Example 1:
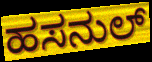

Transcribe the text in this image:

ಹಸನುಲ್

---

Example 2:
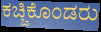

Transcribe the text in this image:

ಕಚ್ಚಿಕೊಂಡರು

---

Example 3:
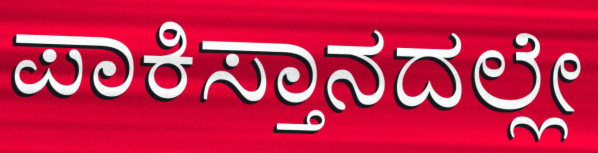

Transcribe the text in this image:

ಪಾಕಿಸ್ತಾನದಲ್ಲೇ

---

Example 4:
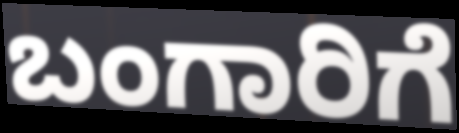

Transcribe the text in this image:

ಬಂಗಾರಿಗೆ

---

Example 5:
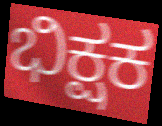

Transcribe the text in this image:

ಭಿಕ್ಷಕ